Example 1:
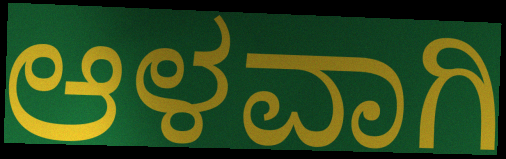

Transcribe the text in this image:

ಆಳವಾಗಿ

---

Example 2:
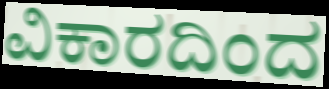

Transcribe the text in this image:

ವಿಕಾರದಿಂದ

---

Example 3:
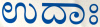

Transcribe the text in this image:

ಉದಾಃ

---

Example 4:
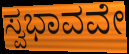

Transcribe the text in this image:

ಸ್ವಭಾವವೇ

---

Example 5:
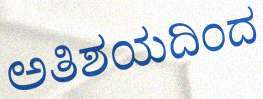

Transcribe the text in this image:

ಅತಿಶಯದಿಂದ